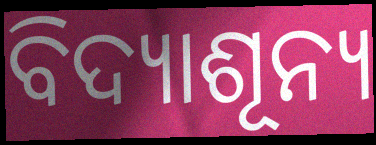
ବିଦ୍ୟାଶୂନ୍ୟ